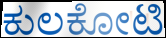
ಕುಲಕೋಟಿ